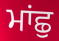
ਮਾਂਛੁ